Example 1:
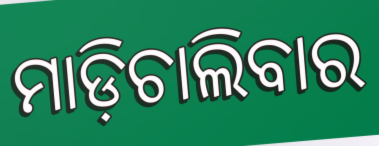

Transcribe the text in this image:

ମାଡ଼ିଚାଲିବାର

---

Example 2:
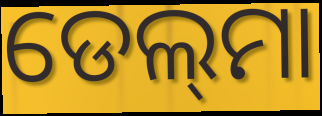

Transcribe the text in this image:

ଡେଲ୍‍ମା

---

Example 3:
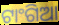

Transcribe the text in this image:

ଟାଂଗିଆ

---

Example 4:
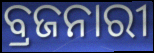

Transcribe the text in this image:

ବ୍ରଜନାରୀ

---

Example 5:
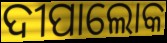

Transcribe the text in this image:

ଦୀପାଲୋକ